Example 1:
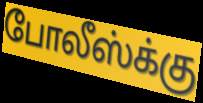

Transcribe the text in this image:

போலீஸ்க்கு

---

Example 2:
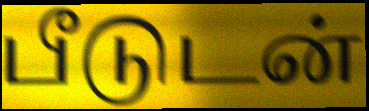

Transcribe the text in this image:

பீடுடன்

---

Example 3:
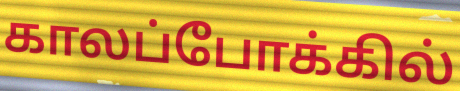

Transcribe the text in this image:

காலப்போக்கில்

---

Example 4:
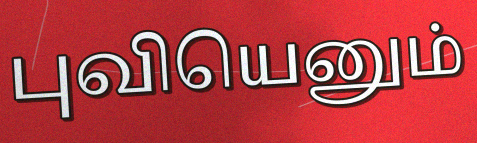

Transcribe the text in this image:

புவியெனும்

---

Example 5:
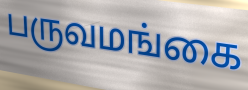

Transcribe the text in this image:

பருவமங்கை